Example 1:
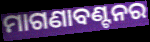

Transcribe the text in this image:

ମାଗଣାବଣ୍ଟନର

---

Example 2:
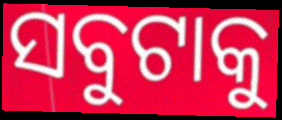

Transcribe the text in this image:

ସବୁଟାକୁ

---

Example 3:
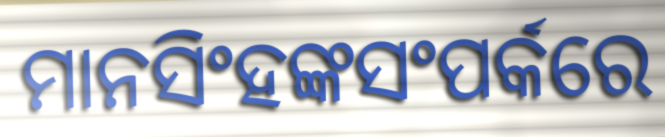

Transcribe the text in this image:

ମାନସିଂହଙ୍କସଂପର୍କରେ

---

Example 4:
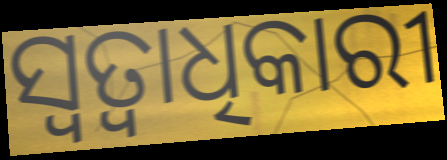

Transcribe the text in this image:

ସ୍ବତ୍ବାଧିକାରୀ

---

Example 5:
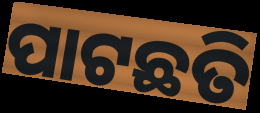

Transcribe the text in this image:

ପାଟଛତି